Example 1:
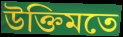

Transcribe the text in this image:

উক্তিমতে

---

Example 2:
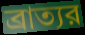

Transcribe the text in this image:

ব্রাত্যর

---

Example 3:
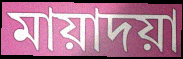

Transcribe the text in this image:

মায়াদয়া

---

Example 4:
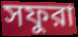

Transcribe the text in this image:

সফুরা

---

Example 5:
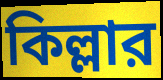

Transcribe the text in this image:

কিল্লার